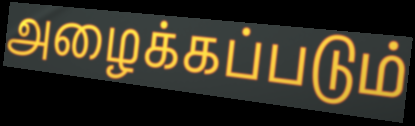
அழைக்கப்படும்